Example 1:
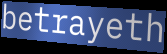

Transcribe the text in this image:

betrayeth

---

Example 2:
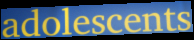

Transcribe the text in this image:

adolescents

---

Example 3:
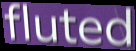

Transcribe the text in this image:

fluted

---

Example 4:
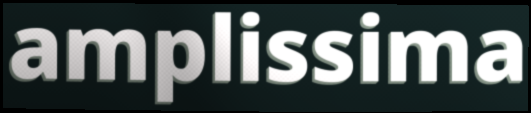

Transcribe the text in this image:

amplissima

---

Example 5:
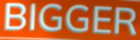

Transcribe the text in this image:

BIGGER